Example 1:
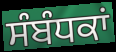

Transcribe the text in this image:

ਸੰਬੰਧਕਾਂ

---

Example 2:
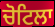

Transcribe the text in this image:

ਚੋਟਿਲਾ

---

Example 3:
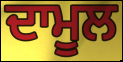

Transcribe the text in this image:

ਦਾਮੂਲ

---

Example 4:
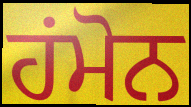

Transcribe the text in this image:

ਹਂਮੋਨ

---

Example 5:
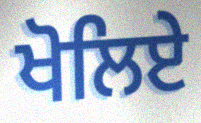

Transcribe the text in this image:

ਖੋਲਿਏ